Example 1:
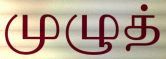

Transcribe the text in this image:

முழுத்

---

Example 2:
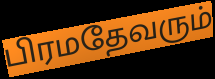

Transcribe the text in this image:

பிரமதேவரும்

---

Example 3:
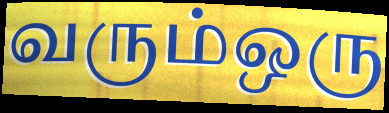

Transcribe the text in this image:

வரும்ஒரு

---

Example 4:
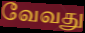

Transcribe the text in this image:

வேவது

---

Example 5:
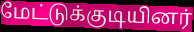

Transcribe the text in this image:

மேட்டுக்குடியினர்